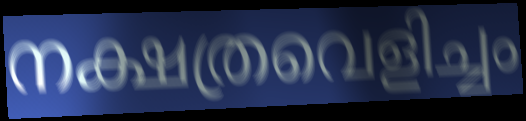
നക്ഷത്രവെളിച്ചം